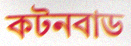
কটনবাড